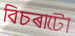
বিচৰাটো